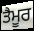
ਤੈਮੂਰ